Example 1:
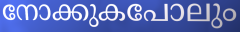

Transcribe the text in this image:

നോക്കുകപോലും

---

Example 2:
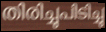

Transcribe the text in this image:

തിരിച്ചുപിടിച്ചു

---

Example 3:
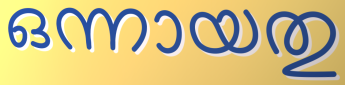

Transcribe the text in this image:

ഒന്നായതു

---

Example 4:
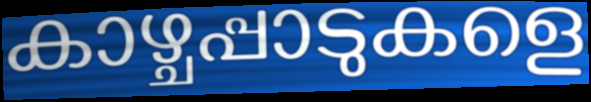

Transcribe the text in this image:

കാഴ്ചപ്പാടുകളെ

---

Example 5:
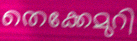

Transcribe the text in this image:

തെക്കേമുറി